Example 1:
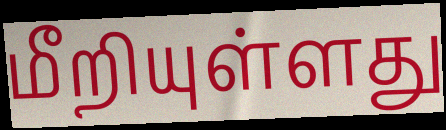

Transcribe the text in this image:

மீறியுள்ளது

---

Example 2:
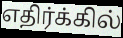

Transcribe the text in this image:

எதிர்க்கில்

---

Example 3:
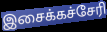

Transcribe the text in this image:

இசைக்கச்சேரி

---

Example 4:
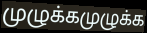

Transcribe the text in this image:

முழுக்கமுழுக்க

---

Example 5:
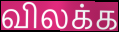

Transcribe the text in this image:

விலக்க